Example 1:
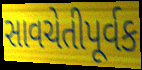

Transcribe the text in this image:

સાવચેતીપૂર્વક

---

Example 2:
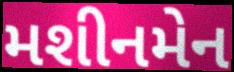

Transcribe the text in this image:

મશીનમેન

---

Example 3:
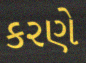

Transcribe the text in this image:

કરણે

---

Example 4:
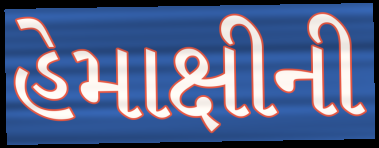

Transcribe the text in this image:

હેમાક્ષીની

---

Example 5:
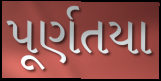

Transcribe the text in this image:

પૂર્ણતયા